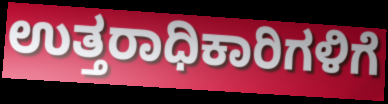
ಉತ್ತರಾಧಿಕಾರಿಗಳಿಗೆ